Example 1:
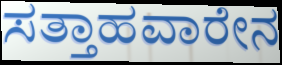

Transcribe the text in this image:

ಸತ್ತಾಹವಾರೇನ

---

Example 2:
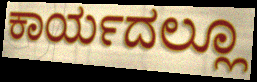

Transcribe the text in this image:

ಕಾರ್ಯದಲ್ಲೂ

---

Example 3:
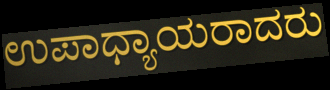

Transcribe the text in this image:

ಉಪಾಧ್ಯಾಯರಾದರು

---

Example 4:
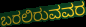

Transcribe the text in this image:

ಬರಲಿರುವವರ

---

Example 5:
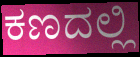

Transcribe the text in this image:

ಕಣದಲ್ಲಿ